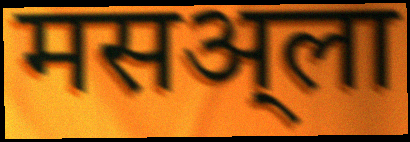
मसअ्ला